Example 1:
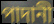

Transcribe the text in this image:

পাদানী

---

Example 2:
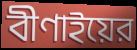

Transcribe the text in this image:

বীণাইয়ের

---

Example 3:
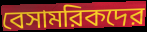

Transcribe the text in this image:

বেসামরিকদের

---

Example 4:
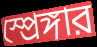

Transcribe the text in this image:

স্প্রেঙ্গার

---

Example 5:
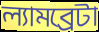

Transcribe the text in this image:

ল্যামব্রেটা